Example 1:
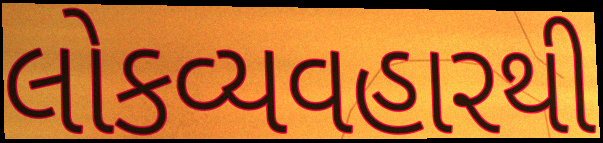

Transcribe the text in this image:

લોકવ્યવહારથી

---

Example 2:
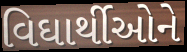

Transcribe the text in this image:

વિઘાર્થીઓને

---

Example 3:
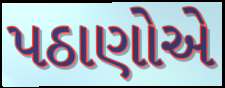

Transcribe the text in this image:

પઠાણોએ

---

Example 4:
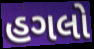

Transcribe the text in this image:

હગલો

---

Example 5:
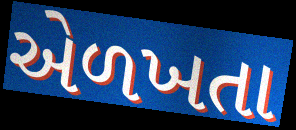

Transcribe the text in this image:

એળખતા